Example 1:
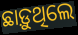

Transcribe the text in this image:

ଛାଡ଼ୁଥିଲେ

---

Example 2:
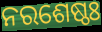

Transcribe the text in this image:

ନରଶେଷ୍ଠଃ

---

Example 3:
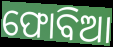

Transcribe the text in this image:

ଫୋବିଆ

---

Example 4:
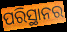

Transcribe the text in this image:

ପରିସ୍ଥାନର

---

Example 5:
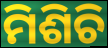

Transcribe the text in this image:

ମିଶିଚି